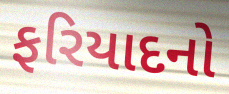
ફરિયાદનો